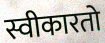
स्वीकारतो